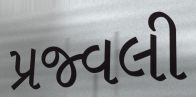
પ્રજ્વલી